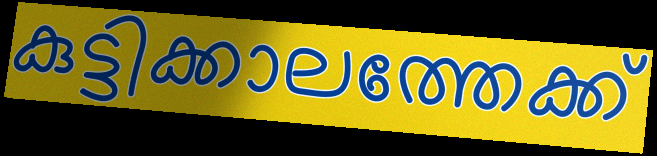
കുട്ടിക്കാലത്തേക്ക്